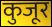
कुजूर